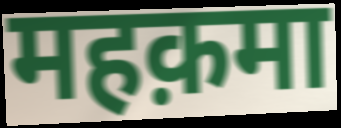
महक़मा